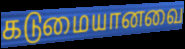
கடுமையானவை